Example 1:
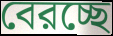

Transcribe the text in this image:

বেরচ্ছে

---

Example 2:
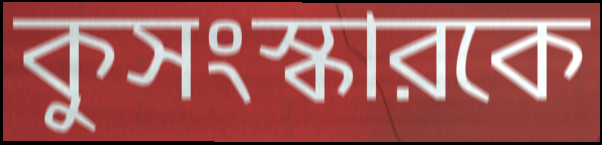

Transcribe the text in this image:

কুসংস্কারকে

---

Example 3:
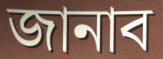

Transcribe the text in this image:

জানাব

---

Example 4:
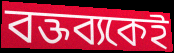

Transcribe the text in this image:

বক্তব্যকেই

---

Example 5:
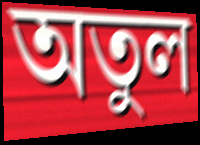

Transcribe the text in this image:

অতুল